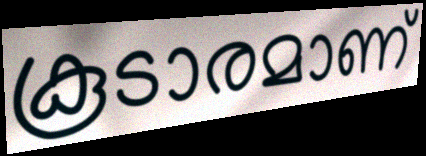
കൂടാരമാണ്